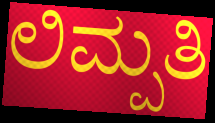
ಲಿಮ್ಪತಿ